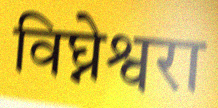
विघ्नेश्वरा